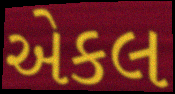
એકલ